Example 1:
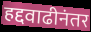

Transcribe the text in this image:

हद्दवाढीनंतर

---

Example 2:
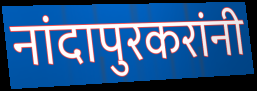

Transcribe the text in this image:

नांदापुरकरांनी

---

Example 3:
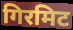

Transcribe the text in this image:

गिरमिट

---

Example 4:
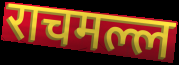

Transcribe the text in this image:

राचमल्ल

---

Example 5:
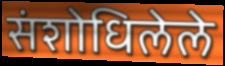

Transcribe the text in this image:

संशोधिलेले